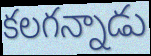
కలగన్నాడు